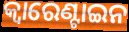
କ୍ୱାରେଣ୍ଟାଇନ